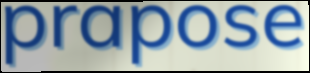
prapose